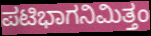
ಪಟಿಭಾಗನಿಮಿತ್ತಂ